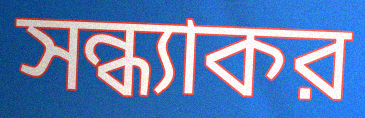
সন্ধ্যাকর